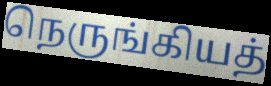
நெருங்கியத்